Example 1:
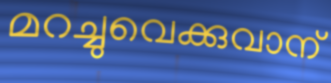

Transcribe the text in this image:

മറച്ചുവെക്കുവാന്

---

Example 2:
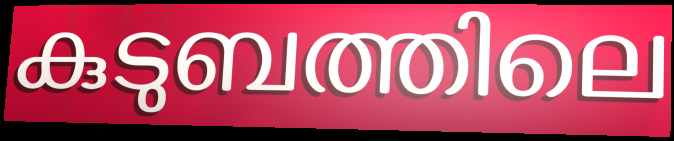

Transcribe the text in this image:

കുടുബത്തിലെ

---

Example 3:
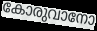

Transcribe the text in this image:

കോരുവാനോ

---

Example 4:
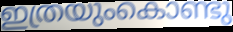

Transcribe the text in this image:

ഇത്രയുംകൊണ്ടു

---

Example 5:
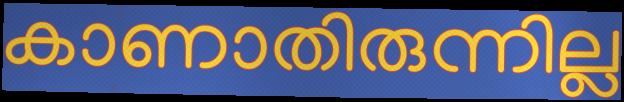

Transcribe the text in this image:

കാണാതിരുന്നില്ല